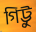
গিট্টু